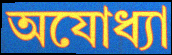
অযোধ্যা